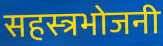
सहस्त्रभोजनी